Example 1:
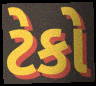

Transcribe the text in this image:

ટેકો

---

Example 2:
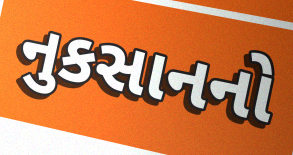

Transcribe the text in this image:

નુકસાનનો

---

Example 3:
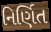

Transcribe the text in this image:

નિર્ણિત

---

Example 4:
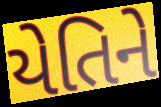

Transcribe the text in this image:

યેતિને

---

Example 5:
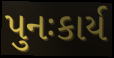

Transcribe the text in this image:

પુનઃકાર્ય